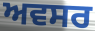
ਅਵਸਰ